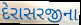
દેરાસરજીના